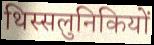
थिस्सलुनिकियों